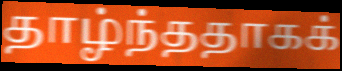
தாழ்ந்ததாகக்